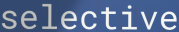
selective